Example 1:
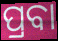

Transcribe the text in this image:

ପ୍ରବା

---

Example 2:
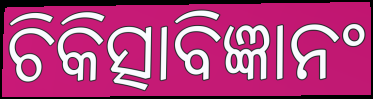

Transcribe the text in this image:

ଚିକିତ୍ସାବିଜ୍ଞାନଂ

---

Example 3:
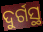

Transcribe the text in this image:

ଦୁର୍ଗସ୍ଥ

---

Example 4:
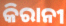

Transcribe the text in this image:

କିରାନୀ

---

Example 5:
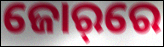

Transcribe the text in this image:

ଜୋର୍‌ରେ